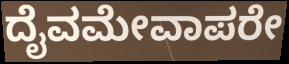
ದೈವಮೇವಾಪರೇ